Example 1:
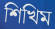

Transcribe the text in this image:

শিখিম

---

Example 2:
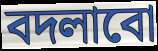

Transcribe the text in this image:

বদলাবো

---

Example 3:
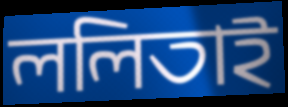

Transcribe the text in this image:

ললিতাই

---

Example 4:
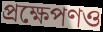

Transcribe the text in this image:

প্রক্ষেপণও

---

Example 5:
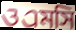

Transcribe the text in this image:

ওএমসি